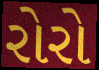
રોરો